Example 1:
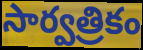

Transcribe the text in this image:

సార్వత్రికం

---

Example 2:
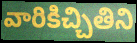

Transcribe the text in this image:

వారికిచ్చితిని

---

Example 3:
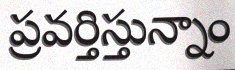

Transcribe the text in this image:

ప్రవర్తిస్తున్నాం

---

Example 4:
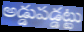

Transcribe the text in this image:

అడ్డుపడ్డట్టు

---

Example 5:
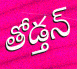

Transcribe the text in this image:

తోడ్తన్